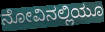
ನೋವಿನಲ್ಲಿಯೂ